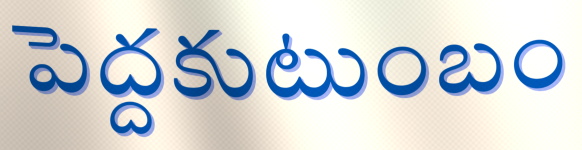
పెద్దకుటుంబం